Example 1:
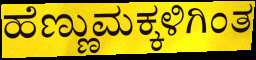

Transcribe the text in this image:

ಹೆಣ್ಣುಮಕ್ಕಳಿಗಿಂತ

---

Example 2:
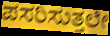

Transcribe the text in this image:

ಪಸರಿಸುತ್ತಲೇ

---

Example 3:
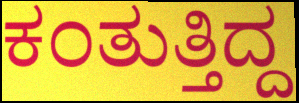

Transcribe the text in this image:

ಕಂತುತ್ತಿದ್ದ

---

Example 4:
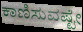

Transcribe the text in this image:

ಕಾಣಿಸುವಷ್ಟೇ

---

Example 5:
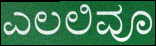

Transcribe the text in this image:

ಎಲಲಿವೂ